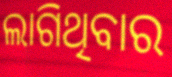
ଲାଗିଥିବାର